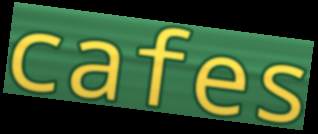
cafes